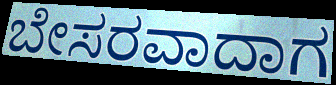
ಬೇಸರವಾದಾಗ